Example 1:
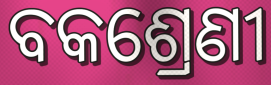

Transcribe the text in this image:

ବକଶ୍ରେଣୀ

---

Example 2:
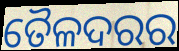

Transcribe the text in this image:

ତୈଳଦରର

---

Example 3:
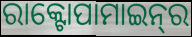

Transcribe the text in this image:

ରାକ୍ଟୋପାମାଇନ୍‌ର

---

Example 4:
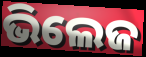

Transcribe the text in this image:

ଭିଲେଜ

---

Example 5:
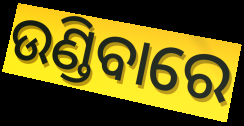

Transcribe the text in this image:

ଉଣ୍ଡିବାରେ